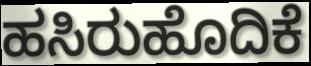
ಹಸಿರುಹೊದಿಕೆ